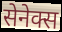
सेनेक्स